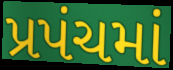
પ્રપંચમાં